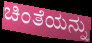
ಚಿಂತೆಯನ್ನು